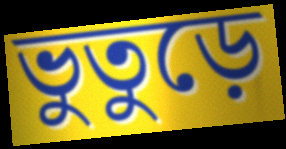
ভুতুড়ে